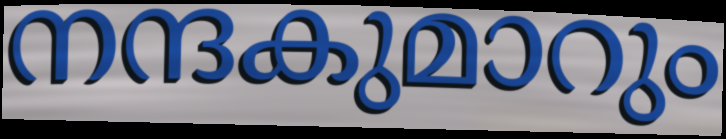
നന്ദകുമാറും